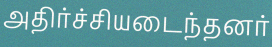
அதிர்ச்சியடைந்தனர்